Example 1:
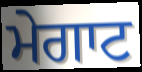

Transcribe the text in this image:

ਮੇਗਾਟ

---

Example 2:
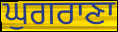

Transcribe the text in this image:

ਘੁਗਰਾਣਾ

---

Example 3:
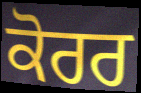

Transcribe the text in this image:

ਕੋਰਰ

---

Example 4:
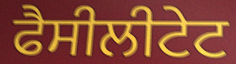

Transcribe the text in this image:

ਫੈਸੀਲੀਟੇਟ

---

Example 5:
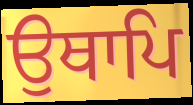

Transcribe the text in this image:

ਉਥਾਪਿ